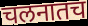
चलनातच